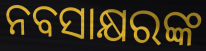
ନବସାକ୍ଷରଙ୍କ